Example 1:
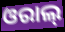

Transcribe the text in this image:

ଓରାଲ୍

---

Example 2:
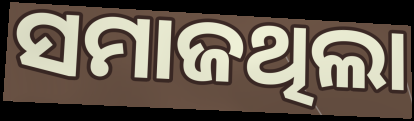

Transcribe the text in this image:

ସମାଜଥିଲା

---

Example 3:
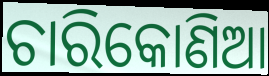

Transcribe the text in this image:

ଚାରିକୋଣିଆ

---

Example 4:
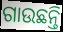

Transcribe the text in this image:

ଗାଉଛନ୍ତି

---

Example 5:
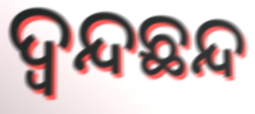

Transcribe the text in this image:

ଦ୍ୱନ୍ଦଛନ୍ଦ